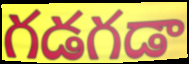
గడగడా